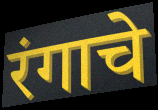
रंगाचे